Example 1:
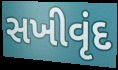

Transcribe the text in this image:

સખીવૃંદ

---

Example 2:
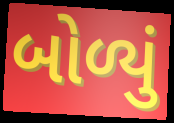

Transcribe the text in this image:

બોળ્યું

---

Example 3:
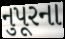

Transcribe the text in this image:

નુપૂરના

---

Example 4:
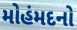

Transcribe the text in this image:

મોહંમદનો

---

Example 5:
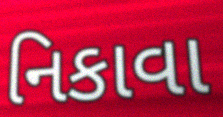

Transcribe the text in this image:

નિકાવા